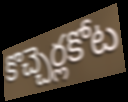
కొచ్చెర్లకోట